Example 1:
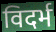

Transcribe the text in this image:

विदर्भ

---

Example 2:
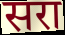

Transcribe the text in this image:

सरा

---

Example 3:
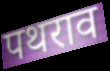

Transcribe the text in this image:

पथराव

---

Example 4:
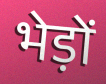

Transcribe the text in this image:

भेड़ों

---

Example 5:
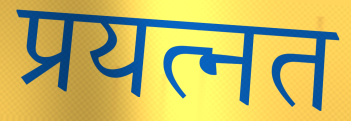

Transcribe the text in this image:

प्रयत्नत